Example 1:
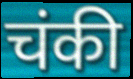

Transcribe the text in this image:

चंकी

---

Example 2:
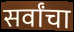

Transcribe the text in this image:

सर्वांचा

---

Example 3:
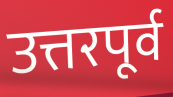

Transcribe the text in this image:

उत्तरपूर्व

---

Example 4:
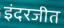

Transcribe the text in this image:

इंदरजीत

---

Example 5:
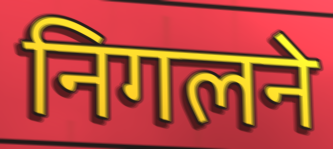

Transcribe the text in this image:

निगलने